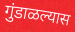
गुंडाळल्यास